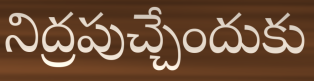
నిద్రపుచ్చేందుకు